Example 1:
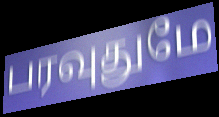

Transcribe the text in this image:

பரவுதுமே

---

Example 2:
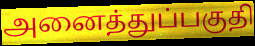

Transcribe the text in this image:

அனைத்துப்பகுதி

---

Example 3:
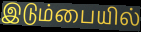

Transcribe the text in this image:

இடும்பையில்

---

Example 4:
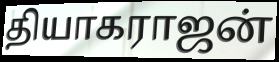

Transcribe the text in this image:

தியாகராஜன்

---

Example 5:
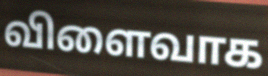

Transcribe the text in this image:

விளைவாக